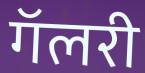
गॅलरी